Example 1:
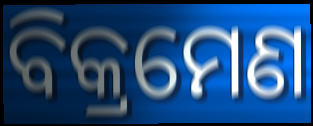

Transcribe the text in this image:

ବିକ୍ରମେଣ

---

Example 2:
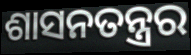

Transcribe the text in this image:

ଶାସନତନ୍ତ୍ରର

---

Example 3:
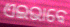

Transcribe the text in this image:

ଏଇଭାବେ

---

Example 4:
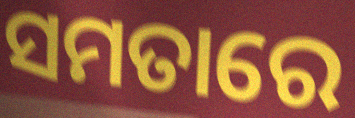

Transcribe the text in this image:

ସମତାରେ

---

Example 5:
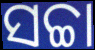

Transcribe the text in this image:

ସଚ୍ଚା